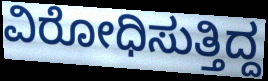
ವಿರೋಧಿಸುತ್ತಿದ್ದ